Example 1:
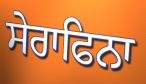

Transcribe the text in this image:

ਸੇਰਾਫਿਨਾ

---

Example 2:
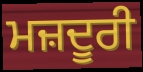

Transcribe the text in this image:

ਮਜ਼ਦੂਰੀ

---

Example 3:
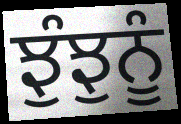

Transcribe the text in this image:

ਝੁੰਝੁਨੂੰ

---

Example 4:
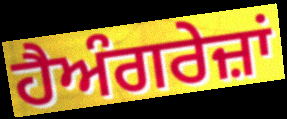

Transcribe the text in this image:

ਹੈਅੰਗਰੇਜ਼ਾਂ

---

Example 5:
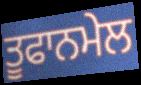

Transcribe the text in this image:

ਤੂਫਾਨਮੇਲ